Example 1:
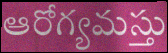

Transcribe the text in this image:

ఆరోగ్యమస్తు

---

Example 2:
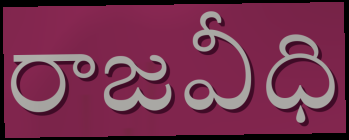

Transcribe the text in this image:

రాజవీధి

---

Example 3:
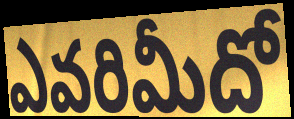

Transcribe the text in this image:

ఎవరిమీదో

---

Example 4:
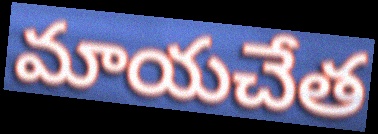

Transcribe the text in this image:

మాయచేత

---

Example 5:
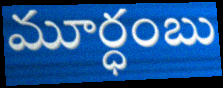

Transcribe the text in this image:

మూర్ధంబు